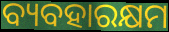
ବ୍ୟବହାରକ୍ଷମ